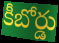
కీబోర్డు